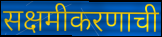
सक्षमीकरणाची